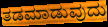
ತಡಮಾಡುವುದು